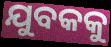
ଯୁବକକୁ